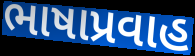
ભાષાપ્રવાહ